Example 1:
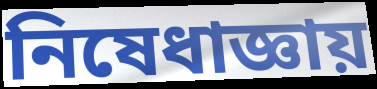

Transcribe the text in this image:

নিষেধাজ্ঞায়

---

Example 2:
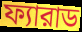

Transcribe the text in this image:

ফ্যারাড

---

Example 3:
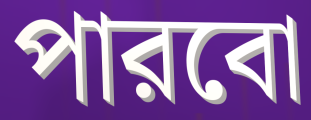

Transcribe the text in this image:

পারবো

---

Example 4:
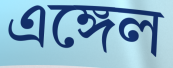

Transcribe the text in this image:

এঙ্গেল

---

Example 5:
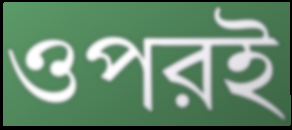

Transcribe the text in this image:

ওপরই